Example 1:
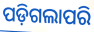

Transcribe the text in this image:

ପଡ଼ିଗଲାପରି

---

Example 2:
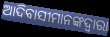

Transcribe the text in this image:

ଆଦିବାସୀମାନଙ୍କଦ୍ୱାରା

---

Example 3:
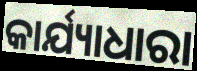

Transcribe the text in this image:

କାର୍ଯ୍ୟାଧାରା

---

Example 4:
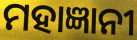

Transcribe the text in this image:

ମହାଜ୍ଞାନୀ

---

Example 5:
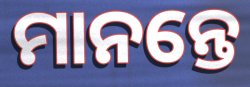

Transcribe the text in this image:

ମାନନ୍ତେ